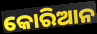
କୋରିଆନ